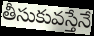
తీసుకువస్తేనే